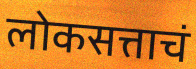
लोकसत्ताचं